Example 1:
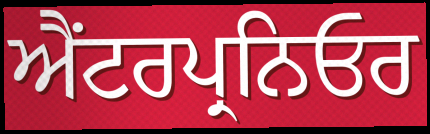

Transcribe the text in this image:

ਐਂਟਰਪ੍ਰਨਿਓਰ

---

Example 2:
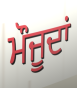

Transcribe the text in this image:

ਮੌਜੂਦਾਂ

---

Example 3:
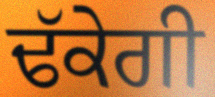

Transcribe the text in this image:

ਢੱਕੇਗੀ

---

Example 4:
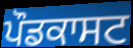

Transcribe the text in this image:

ਪੌਡਕਾਸਟ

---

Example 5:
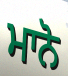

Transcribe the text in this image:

ਮਾਨੋ